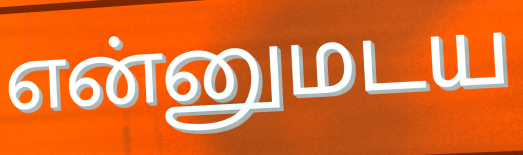
என்னுமடய